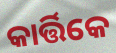
କାର୍ତ୍ତିକେ